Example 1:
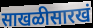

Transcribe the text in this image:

साखळीसारखं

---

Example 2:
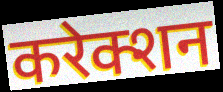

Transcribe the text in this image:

करेक्शन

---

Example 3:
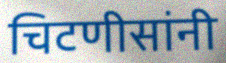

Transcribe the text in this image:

चिटणीसांनी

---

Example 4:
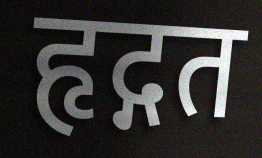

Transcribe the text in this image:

हृद्गत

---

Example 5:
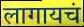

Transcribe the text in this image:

लागायचं